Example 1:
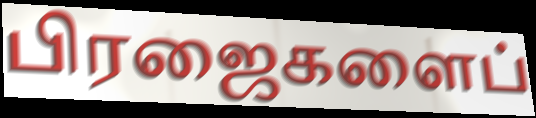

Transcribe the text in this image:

பிரஜைகளைப்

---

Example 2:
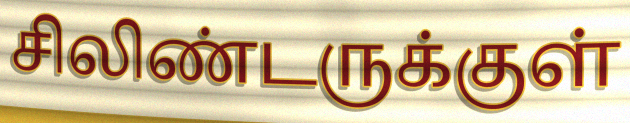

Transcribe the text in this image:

சிலிண்டருக்குள்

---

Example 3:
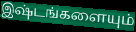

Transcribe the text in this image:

இஷ்டங்களையும்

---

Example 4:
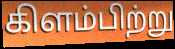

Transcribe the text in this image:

கிளம்பிற்று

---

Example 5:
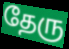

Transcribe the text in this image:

தேரு